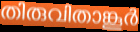
തിരുവിതാങ്കൂർ